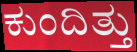
ಕುಂದಿತ್ತು